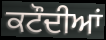
ਕਟੌਦੀਆਂ